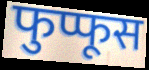
फुप्फूस